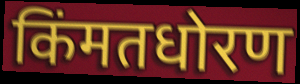
किंमतधोरण